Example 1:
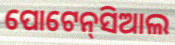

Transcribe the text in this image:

ପୋଟେନ୍‌ସିଆଲ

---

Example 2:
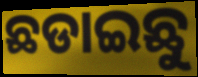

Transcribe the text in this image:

ଛଡାଇଛୁ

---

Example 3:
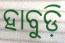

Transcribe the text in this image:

ହାବୁଡ଼ି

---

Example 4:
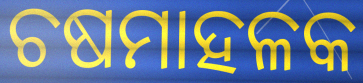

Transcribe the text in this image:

ଚଷମାହଳକ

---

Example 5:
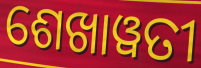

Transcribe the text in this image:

ଶେଖାୱତୀ